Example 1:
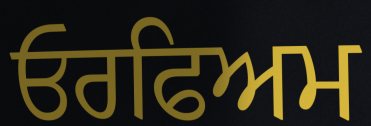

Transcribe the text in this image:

ਓਰਫਿਅਮ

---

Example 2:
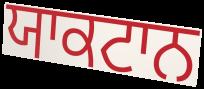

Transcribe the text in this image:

ਯਾਕਟਾਨ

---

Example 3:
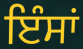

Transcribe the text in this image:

ਇੰਸਾਂ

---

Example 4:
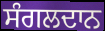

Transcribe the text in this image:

ਸੰਗਲਦਾਨ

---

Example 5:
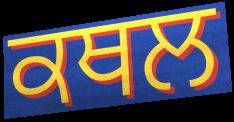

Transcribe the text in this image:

ਕਥਲ